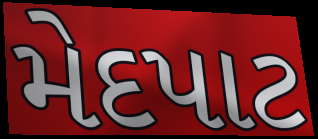
મેદપાટ